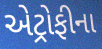
એટ્રોફીના